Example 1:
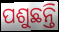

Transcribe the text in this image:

ପଶୁଛନ୍ତି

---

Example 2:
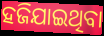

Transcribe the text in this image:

ହଜିଯାଇଥିବା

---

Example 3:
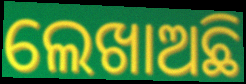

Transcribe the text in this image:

ଲେଖାଅଛି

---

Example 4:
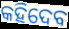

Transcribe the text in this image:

କହିଦେବ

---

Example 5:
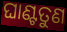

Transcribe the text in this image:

ଘାଣ୍ଟତୁଣ